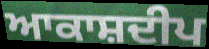
ਆਕਾਸ਼ਦੀਪ